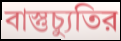
বাস্তুচ্যুতির